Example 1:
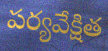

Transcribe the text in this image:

పర్యవేక్షిత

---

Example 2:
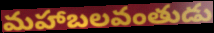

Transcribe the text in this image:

మహాబలవంతుడు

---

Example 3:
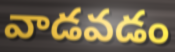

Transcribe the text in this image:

వాడవడం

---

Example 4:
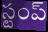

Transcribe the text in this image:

స్టంప్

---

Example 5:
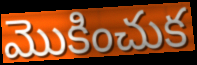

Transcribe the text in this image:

మొకించుక